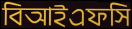
বিআইএফসি